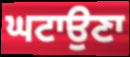
ਘਟਾਉਣਾ